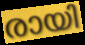
രായി